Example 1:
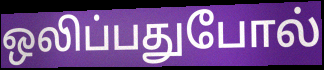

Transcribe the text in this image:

ஒலிப்பதுபோல்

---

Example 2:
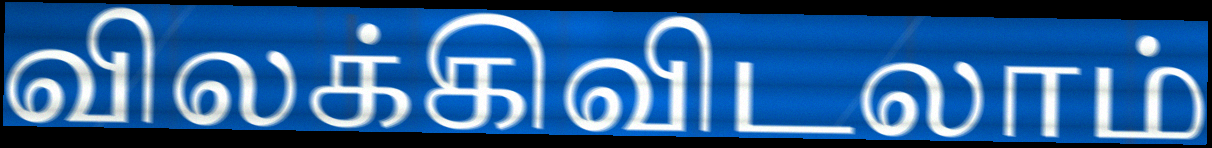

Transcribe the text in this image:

விலக்கிவிடலாம்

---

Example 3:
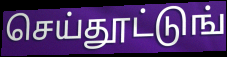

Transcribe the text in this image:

செய்தூட்டுங்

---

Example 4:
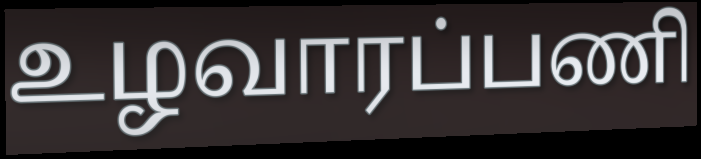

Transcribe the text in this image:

உழவாரப்பணி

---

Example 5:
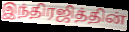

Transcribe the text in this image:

இந்திரஜித்தின்